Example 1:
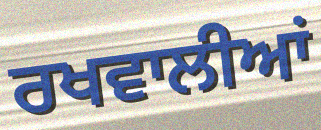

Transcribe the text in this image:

ਰਖਵਾਲੀਆਂ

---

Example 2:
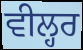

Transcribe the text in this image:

ਵੀਲ੍ਹਰ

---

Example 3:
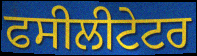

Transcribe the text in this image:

ਫਸੀਲੀਟੇਟਰ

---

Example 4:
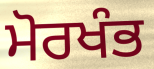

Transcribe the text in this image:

ਮੋਰਖੰਭ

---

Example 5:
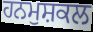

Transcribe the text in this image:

ਹਨਮੁਸ਼ਕਲ